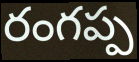
రంగప్ప